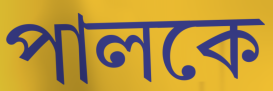
পালকে